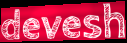
devesh